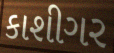
કાશીગર